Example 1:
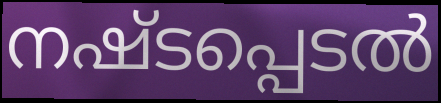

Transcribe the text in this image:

നഷ്ടപ്പെടൽ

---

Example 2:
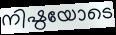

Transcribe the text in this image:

നിഷ്ഠയോടെ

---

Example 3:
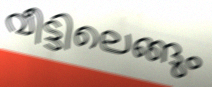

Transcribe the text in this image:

വീട്ടിലെങ്ങും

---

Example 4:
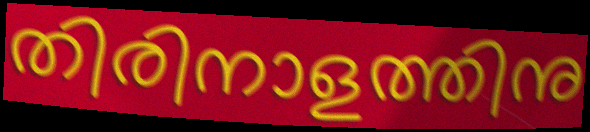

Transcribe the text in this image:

തിരിനാളത്തിനു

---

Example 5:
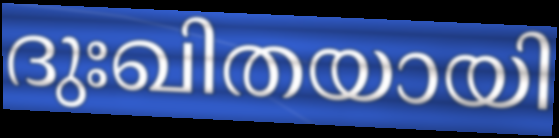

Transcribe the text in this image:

ദുഃഖിതയായി